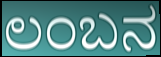
ಲಂಬನ